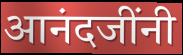
आनंदजींनी